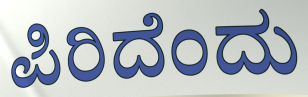
ಪಿರಿದೆಂದು